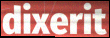
dixerit